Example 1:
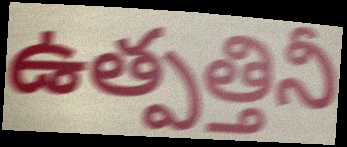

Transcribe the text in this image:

ఉత్పత్తినీ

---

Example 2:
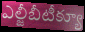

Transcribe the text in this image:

ఎల్జీబీటీక్యూ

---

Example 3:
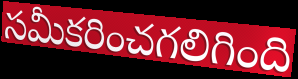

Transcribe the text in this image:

సమీకరించగలిగింది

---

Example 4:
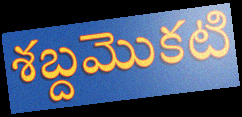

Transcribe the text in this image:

శబ్దమొకటి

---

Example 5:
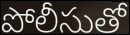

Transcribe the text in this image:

పోలీసుతో